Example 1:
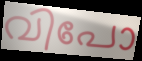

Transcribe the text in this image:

വിപോ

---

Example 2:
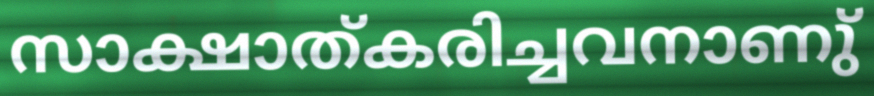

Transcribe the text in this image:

സാക്ഷാത്കരിച്ചവനാണു്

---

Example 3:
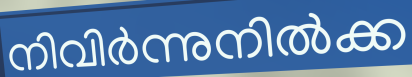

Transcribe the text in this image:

നിവിർന്നുനിൽക്ക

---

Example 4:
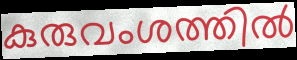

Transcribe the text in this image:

കുരുവംശത്തിൽ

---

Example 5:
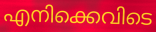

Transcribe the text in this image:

എനിക്കെവിടെ